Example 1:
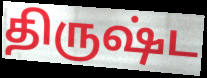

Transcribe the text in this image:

திருஷ்ட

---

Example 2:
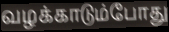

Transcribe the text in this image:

வழக்காடும்போது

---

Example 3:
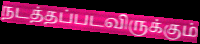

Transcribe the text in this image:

நடத்தப்படவிருக்கும்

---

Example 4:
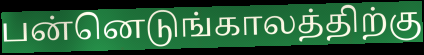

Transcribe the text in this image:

பன்னெடுங்காலத்திற்கு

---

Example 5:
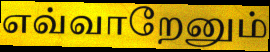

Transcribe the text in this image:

எவ்வாறேனும்